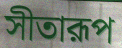
সীতারূপ